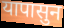
यापासुन